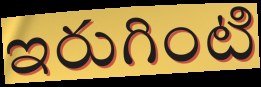
ఇరుగింటి